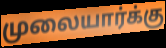
முலையார்க்கு